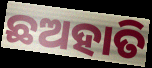
ଛଅହାତି